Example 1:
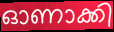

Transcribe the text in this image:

ഓണാക്കി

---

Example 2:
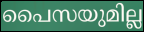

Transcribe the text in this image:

പൈസയുമില്ല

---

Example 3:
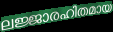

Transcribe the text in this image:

ലജ്ജാരഹിതമായ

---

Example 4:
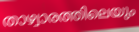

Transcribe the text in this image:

താഴ്വാരത്തിലെയും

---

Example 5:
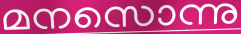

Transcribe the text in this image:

മനസൊന്നു